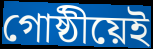
গোষ্ঠীয়েই